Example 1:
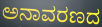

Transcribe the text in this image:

ಅನಾವರಣದ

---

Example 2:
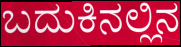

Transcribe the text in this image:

ಬದುಕಿನಲ್ಲಿನ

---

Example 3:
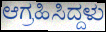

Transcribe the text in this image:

ಆಗ್ರಹಿಸಿದ್ದಳು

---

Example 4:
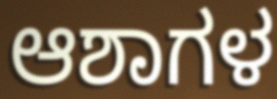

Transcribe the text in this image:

ಆಶಾಗಳ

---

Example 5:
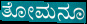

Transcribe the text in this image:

ತೋಮನೂ